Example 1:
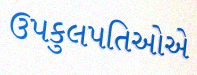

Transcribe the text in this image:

ઉપકુલપતિઓએ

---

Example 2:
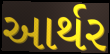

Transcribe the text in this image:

આર્થર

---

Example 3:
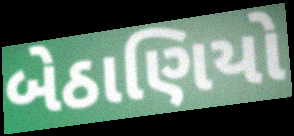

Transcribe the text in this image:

બેઠાણિયો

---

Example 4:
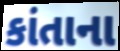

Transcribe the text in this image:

કાંતાના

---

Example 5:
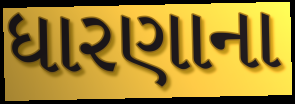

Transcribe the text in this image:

ધારણાના